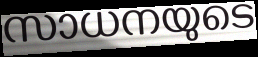
സാധനയുടെ